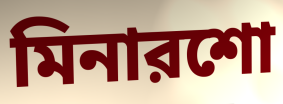
মিনারশো